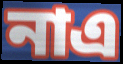
নাএ